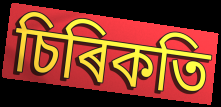
চিৰিকতি